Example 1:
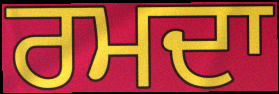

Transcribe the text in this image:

ਰਮਦਾ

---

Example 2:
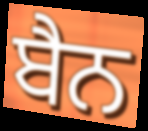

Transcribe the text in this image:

ਬੈਨ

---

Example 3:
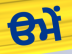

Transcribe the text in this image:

ੳਮੇਂ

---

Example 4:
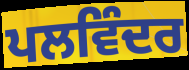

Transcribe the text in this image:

ਪਲਵਿੰਦਰ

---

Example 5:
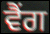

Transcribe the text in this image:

ਵੈਂਗ